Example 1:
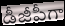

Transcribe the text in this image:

డీజీపీగా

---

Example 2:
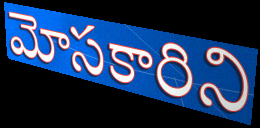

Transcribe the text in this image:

మోసకారిని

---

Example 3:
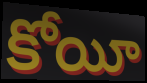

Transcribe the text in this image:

కోయీ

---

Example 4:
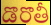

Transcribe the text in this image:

డొరొతీ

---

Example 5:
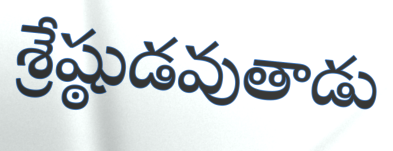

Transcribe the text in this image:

శ్రేష్ఠుడవుతాడు